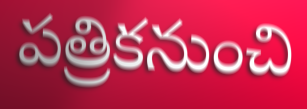
పత్రికనుంచి